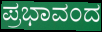
ಪ್ರಭಾವಂದ